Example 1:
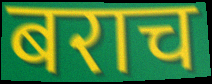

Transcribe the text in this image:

बराच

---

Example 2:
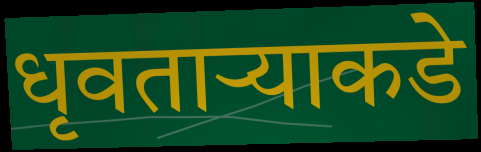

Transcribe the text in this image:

धृवतार्‍याकडे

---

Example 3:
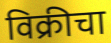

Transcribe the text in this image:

विक्रीचा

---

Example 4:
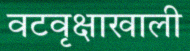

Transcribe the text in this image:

वटवृक्षाखाली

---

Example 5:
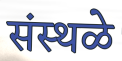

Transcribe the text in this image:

संस्थळे